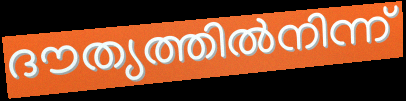
ദൗത്യത്തിൽനിന്ന്